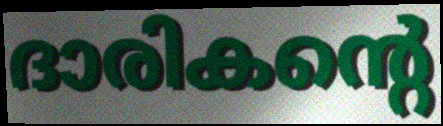
ദാരികന്റെ